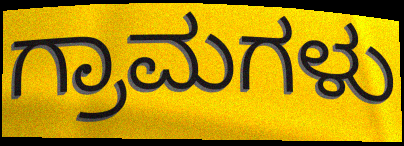
ಗ್ರಾಮಗಳು